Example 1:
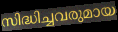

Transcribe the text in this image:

സിദ്ധിച്ചവരുമായ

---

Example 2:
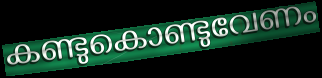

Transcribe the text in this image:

കണ്ടുകൊണ്ടുവേണം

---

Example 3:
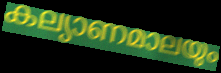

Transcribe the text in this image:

കല്യാണമാലയും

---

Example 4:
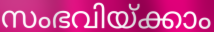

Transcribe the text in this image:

സംഭവിയ്ക്കാം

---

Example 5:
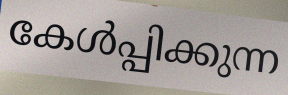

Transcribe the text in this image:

കേൾപ്പിക്കുന്ന